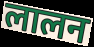
लालन